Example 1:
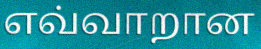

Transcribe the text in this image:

எவ்வாறான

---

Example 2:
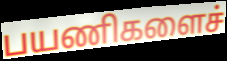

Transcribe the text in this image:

பயணிகளைச்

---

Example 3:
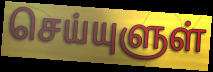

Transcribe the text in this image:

செய்யுளுள்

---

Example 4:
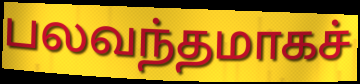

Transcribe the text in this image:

பலவந்தமாகச்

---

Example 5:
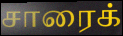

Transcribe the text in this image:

சாரைக்